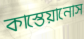
কাস্তেয়ানোস